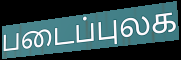
படைப்புலக